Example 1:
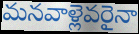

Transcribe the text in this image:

మనవాళ్లెవరైనా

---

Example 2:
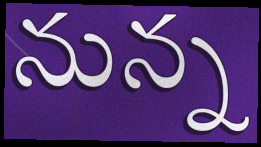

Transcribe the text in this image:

నున్న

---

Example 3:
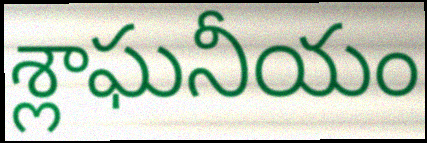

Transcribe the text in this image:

శ్లాఘనీయం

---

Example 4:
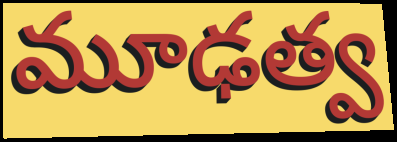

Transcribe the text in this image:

మూఢత్వ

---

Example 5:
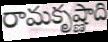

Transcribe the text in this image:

రామకృష్ణాది